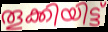
തൂക്കിയിട്ട്